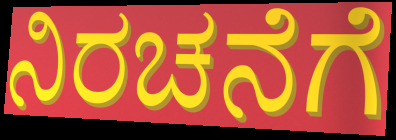
ನಿರಚನೆಗೆ